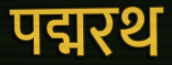
पद्मरथ